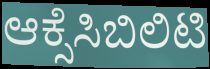
ಆಕ್ಸೆಸಿಬಿಲಿಟಿ